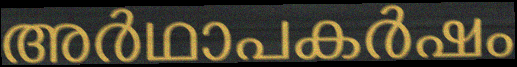
അർഥാപകർഷം